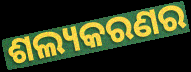
ଶଲ୍ୟକରଣର